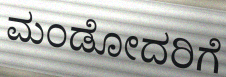
ಮಂಡೋದರಿಗೆ